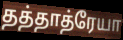
தத்தாத்ரேயா